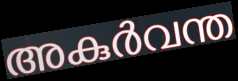
അകുർവന്ത